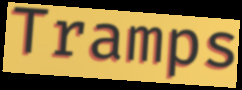
Tramps